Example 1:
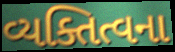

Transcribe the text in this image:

વ્યક્તિત્વના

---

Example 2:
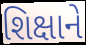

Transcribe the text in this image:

શિક્ષાને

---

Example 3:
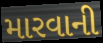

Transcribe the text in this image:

મારવાની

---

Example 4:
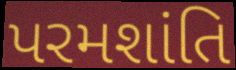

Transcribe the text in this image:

પરમશાંતિ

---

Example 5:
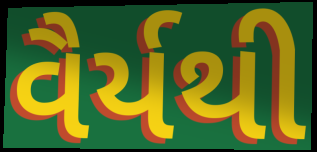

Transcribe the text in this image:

વૈર્યથી